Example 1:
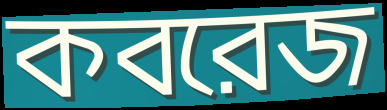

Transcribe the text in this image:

কবরেজ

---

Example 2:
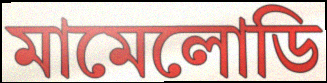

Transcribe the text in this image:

মামেলোডি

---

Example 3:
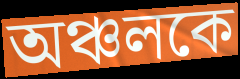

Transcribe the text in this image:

অঞ্চলকে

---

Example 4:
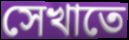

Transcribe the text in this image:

সেখাতে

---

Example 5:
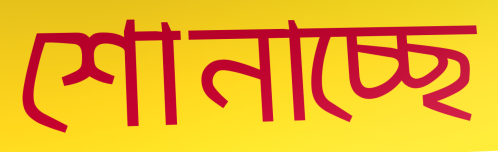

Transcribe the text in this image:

শোনাচ্ছে